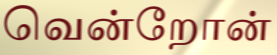
வென்றோன்